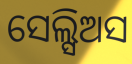
ସେଲ୍ସିଅସ